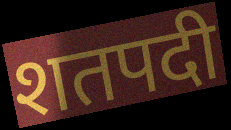
शतपदी